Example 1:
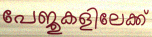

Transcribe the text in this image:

പേജുകളിലേക്ക്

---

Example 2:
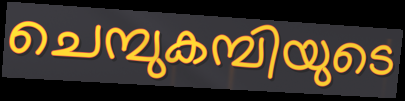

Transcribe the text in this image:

ചെമ്പുകമ്പിയുടെ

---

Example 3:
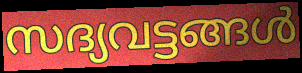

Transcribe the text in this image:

സദ്യവട്ടങ്ങൾ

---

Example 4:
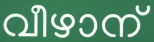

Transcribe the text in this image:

വീഴാന്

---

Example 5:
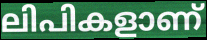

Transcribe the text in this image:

ലിപികളാണ്